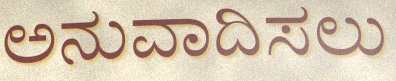
ಅನುವಾದಿಸಲು